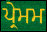
ਪ੍ਰੇਮਮ